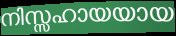
നിസ്സഹായയായ